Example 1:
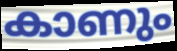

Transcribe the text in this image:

കാണും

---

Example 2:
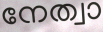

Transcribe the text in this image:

നേത്വാ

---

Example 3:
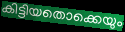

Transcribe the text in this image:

കിട്ടിയതൊക്കെയും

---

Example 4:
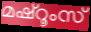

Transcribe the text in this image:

മഷ്റൂംസ്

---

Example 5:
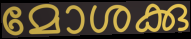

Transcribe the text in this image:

മോശക്കു